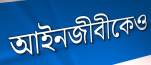
আইনজীবীকেও